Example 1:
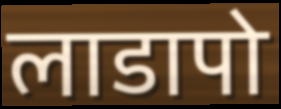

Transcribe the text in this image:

लाडापो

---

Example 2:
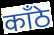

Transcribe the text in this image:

काँठे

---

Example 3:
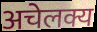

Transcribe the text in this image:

अचेलक्य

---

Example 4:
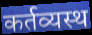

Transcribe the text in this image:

कर्तव्यस्थ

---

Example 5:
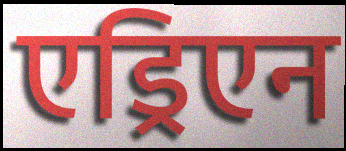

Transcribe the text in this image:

एड्रिएन